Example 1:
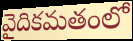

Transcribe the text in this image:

వైదికమతంలో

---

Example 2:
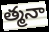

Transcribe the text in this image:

త్మనా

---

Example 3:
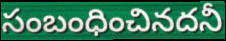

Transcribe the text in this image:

సంబంధించినదనీ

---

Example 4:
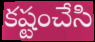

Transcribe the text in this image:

కష్టంచేసి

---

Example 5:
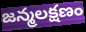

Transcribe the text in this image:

జన్మలక్షణం